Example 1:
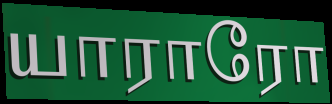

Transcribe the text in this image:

யாராரோ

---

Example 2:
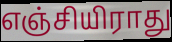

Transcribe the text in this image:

எஞ்சியிராது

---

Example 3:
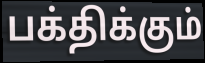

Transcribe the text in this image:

பக்திக்கும்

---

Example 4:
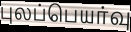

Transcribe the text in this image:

புலப்பெயர்வு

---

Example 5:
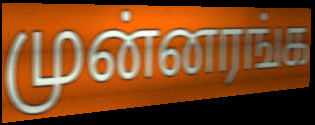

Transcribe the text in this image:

முன்னரங்க